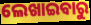
ଲେଖାଇବାରୁ